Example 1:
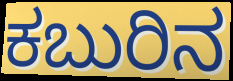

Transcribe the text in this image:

ಕಬುರಿನ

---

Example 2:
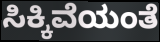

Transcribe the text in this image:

ಸಿಕ್ಕಿವೆಯಂತೆ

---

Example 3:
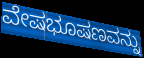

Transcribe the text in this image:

ವೇಷಭೂಷಣವನ್ನು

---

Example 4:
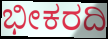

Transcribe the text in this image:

ಭೀಕರದಿ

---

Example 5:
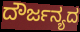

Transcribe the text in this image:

ದೌರ್ಜನ್ಯದ